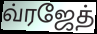
வ்ரஜேத்